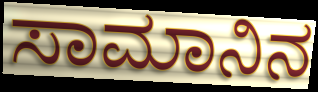
ಸಾಮಾನಿನ